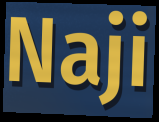
Naji